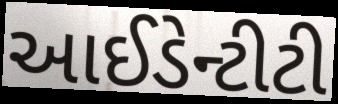
આઈડેન્ટીટી